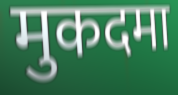
मुकदमा